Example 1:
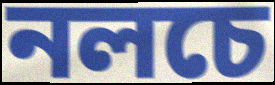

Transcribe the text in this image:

নলচে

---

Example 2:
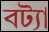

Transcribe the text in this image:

বট্যা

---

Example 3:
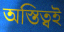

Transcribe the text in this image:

অস্তিত্বই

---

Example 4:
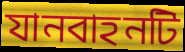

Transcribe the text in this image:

যানবাহনটি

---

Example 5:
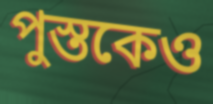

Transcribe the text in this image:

পুস্তকেও